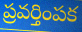
ప్రవర్తింపక